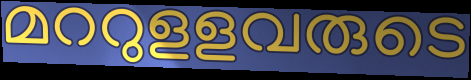
മററുളളവരുടെ